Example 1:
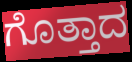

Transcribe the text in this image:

ಗೊತ್ತಾದ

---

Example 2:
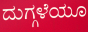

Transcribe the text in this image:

ದುಗ್ಗಳೆಯೂ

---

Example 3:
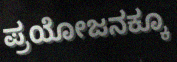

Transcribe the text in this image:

ಪ್ರಯೋಜನಕ್ಕೂ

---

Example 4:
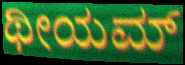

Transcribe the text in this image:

ಥೀಯಮ್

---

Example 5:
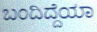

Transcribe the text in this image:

ಬಂದಿದ್ದೆಯಾ